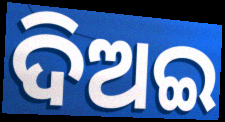
ଦିଅଇ